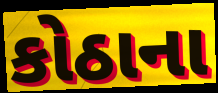
કોઠાના